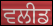
ਵਲੀਡ